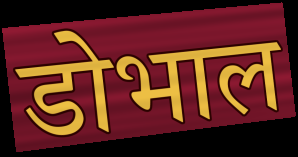
डोभाल